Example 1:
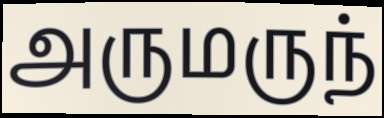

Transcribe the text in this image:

அருமருந்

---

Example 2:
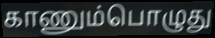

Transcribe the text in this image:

காணும்பொழுது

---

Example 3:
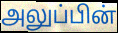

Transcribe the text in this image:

அலுப்பின்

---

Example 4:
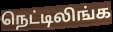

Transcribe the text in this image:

நெட்டிலிங்க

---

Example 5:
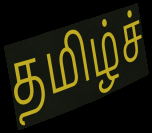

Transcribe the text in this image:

தமிழ்ச்